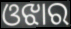
ଓଝାର